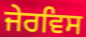
ਜੇਰਵਿਸ